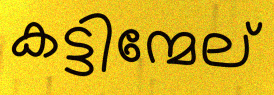
കട്ടിന്മേല്